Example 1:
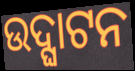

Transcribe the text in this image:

ଉଦ୍ଘାଟନ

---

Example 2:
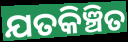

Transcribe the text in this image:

ଯତକିଞ୍ଚିତ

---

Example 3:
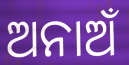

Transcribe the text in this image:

ଅନାଅଁ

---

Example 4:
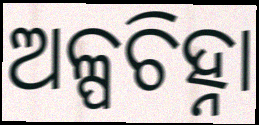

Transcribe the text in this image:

ଅଳ୍ପଚିହ୍ନା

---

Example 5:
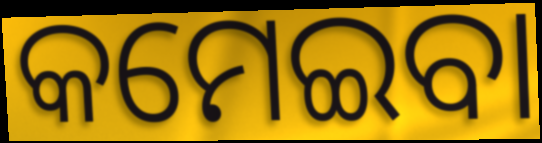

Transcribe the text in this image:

କମେଇବା